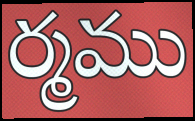
ర్మము